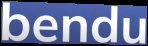
bendu